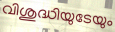
വിശുദ്ധിയുടേയും